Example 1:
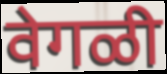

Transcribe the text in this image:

वेगळी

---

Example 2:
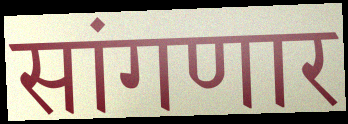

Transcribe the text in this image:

सांगणार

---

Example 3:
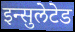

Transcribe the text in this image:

इन्सुलेटेड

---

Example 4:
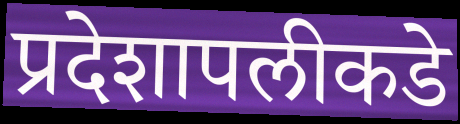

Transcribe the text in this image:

प्रदेशापलीकडे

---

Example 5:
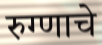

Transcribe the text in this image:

रुग्‍णाचे